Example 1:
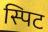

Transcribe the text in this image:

स्पिट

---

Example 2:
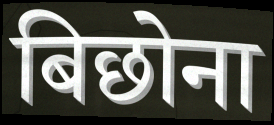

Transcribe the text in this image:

बिछोना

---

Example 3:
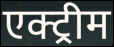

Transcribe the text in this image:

एक्ट्रीम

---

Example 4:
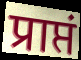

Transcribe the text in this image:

प्राप्तं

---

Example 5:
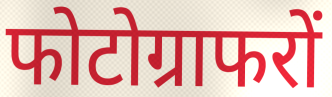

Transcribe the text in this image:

फोटोग्राफरों